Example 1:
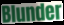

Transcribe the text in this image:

Blunder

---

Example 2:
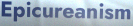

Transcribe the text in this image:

Epicureanism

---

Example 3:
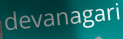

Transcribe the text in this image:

devanagari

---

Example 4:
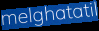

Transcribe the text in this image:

melghatatil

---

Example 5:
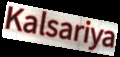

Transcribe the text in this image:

Kalsariya